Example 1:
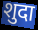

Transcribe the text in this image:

शुदा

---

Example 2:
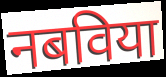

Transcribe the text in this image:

नबविया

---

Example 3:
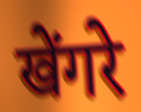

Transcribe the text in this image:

खेंगरे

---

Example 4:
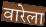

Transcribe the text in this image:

वारेला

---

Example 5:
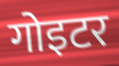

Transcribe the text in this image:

गोइटर